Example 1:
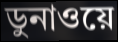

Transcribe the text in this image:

ডুনাওয়ে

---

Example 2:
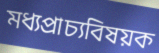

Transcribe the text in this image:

মধ্যপ্রাচ্যবিষয়ক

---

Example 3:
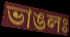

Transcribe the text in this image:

ভাঙলঃ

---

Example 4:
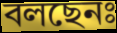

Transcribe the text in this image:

বলছেনঃ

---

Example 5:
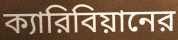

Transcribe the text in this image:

ক্যারিবিয়ানের